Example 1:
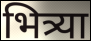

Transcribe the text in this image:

भित्र्या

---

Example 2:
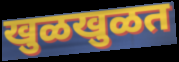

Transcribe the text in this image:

खुळखुळत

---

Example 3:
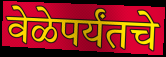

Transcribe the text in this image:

वेळेपर्यंतचे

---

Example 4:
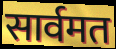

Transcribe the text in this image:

सार्वमत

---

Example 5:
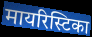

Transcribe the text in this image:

मायरिस्टिका